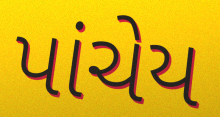
પાંચેય